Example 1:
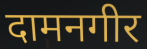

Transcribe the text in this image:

दामनगीर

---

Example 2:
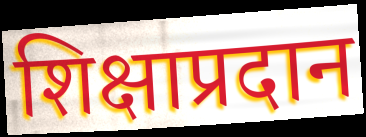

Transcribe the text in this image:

शिक्षाप्रदान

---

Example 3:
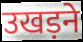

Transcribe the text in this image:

उखड़ने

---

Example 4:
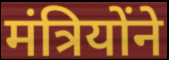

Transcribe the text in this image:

मंत्रियोंने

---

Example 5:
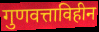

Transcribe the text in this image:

गुणवत्ताविहीन